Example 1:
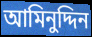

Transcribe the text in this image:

আমিনুদ্দিন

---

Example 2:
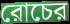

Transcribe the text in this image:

রোচের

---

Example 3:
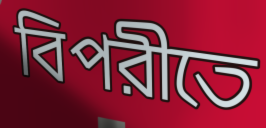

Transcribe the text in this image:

বিপরীতে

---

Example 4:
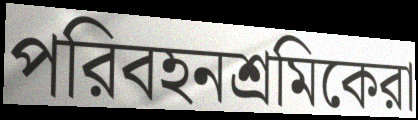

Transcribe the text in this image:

পরিবহনশ্রমিকেরা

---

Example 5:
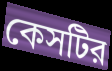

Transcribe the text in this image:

কেসটির